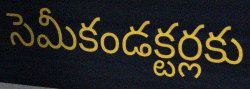
సెమీకండక్టర్లకు